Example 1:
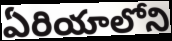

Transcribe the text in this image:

ఏరియాలోని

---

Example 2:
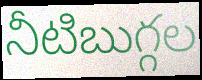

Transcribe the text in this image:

నీటిబుగ్గల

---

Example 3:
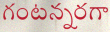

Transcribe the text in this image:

గంటన్నరగా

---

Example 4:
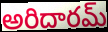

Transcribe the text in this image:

అరిదారమ్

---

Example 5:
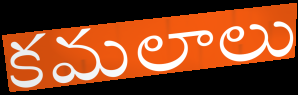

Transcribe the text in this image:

కమలాలు